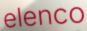
elenco